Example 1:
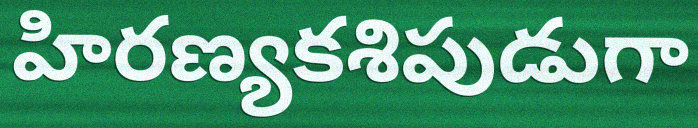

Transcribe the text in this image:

హిరణ్యకశిపుడుగా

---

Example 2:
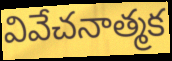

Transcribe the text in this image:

వివేచనాత్మక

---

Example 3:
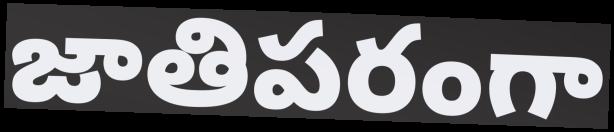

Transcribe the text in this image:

జాతిపరంగా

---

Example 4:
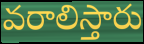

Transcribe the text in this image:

వరాలిస్తారు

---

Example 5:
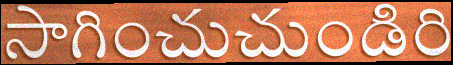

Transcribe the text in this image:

సాగించుచుండిరి